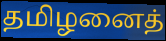
தமிழனைத்